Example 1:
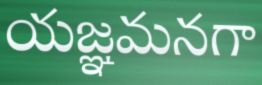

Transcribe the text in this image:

యజ్ఞమనగా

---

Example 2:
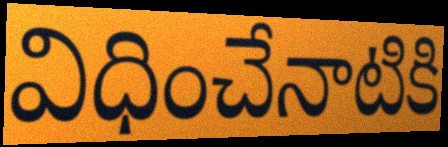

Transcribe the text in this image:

విధించేనాటికి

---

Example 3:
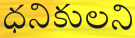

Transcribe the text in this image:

ధనికులని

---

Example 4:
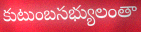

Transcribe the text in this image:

కుటుంబసభ్యులంతా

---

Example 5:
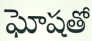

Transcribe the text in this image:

ఘోషతో